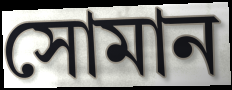
সোমান